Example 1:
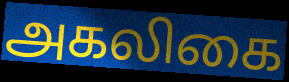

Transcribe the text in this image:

அகலிகை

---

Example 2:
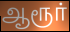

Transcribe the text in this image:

ஆரூர்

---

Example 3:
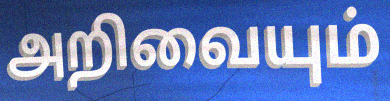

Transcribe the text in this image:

அறிவையும்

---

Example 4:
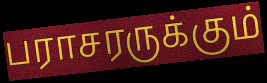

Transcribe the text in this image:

பராசரருக்கும்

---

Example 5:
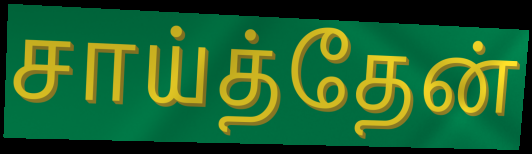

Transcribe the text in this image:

சாய்த்தேன்